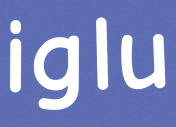
iglu